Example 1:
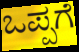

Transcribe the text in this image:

ಒಪ್ಪಗೆ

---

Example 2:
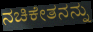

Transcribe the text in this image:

ನಚಿಕೇತನನ್ನು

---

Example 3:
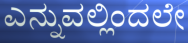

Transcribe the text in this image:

ಎನ್ನುವಲ್ಲಿಂದಲೇ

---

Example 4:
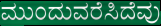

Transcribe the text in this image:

ಮುಂದುವರೆಸಿದೆವು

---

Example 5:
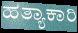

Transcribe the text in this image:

ಹತ್ಯಾಕಾರಿ